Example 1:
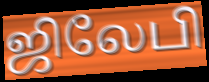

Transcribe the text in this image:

ஜிலேபி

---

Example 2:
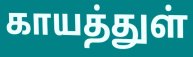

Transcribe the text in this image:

காயத்துள்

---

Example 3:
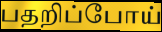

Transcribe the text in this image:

பதறிப்போய்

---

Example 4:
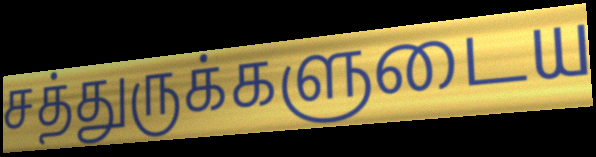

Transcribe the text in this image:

சத்துருக்களுடைய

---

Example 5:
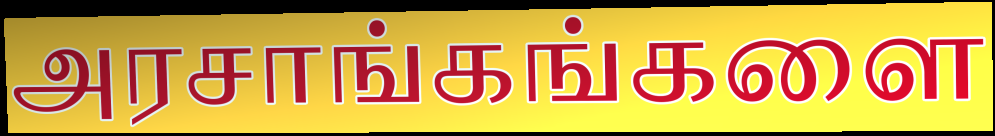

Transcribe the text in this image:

அரசாங்கங்களை